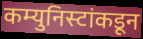
कम्युनिस्टांकडून